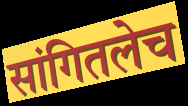
सांगितलेच